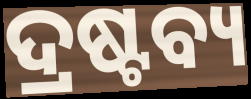
ଦ୍ରଷ୍ଟବ୍ୟ